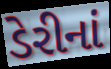
ડેરીનાં